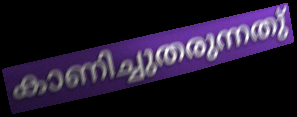
കാണിച്ചുതരുന്നതു്